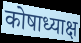
कोषाध्याक्ष